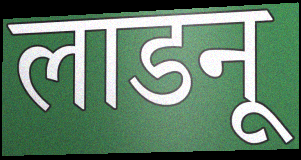
लाडनू